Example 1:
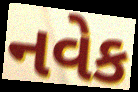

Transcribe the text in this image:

નવેક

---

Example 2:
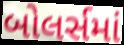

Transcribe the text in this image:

બોલર્સમાં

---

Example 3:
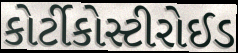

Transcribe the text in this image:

કોર્ટીકોસ્ટીરોઈડ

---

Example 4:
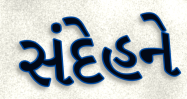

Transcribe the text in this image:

સંદેહને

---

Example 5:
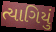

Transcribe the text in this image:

ત્યાગિયું